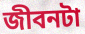
জীবনটা